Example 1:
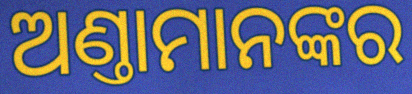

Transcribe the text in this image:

ଅଣ୍ତାମାନଙ୍କର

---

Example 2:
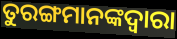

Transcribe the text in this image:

ତୁରଙ୍ଗମାନଙ୍କଦ୍ୱାରା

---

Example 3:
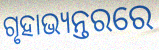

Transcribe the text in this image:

ଗୃହାଭ୍ୟନ୍ତରରେ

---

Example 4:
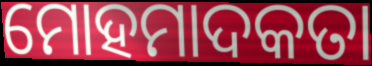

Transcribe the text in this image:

ମୋହମାଦକତା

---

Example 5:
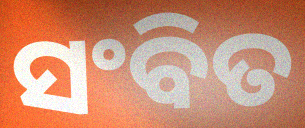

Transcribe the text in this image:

ସଂବିତ